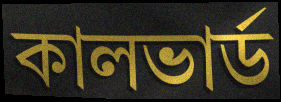
কালভার্ড